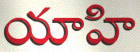
యాహి